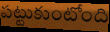
పట్టుకుంటోంది